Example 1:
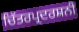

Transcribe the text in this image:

ਚਿੱਤਰਪ੍ਰਦਰਸ਼ਨੀ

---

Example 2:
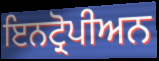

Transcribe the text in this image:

ਇਨਟ੍ਰੋਪੀਅਨ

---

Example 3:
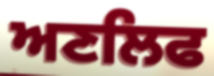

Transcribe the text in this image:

ਅਣਲਿਫ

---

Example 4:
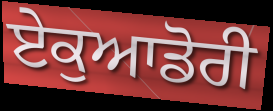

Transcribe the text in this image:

ਏਕੁਆਡੋਰੀ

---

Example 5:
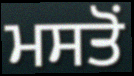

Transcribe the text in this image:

ਮਸਤੋਂ